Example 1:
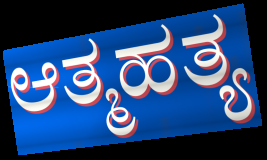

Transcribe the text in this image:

ಆತ್ಮಹತ್ಯ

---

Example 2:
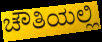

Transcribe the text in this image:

ಚೌತಿಯಲ್ಲಿ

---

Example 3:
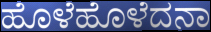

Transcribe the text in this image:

ಹೊಳೆಹೊಳೆದನಾ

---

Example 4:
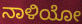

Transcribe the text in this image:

ನಾಳಿಯೋ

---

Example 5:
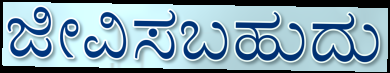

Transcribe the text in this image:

ಜೀವಿಸಬಹುದು